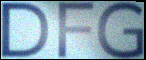
DFG